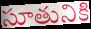
సూతునికి